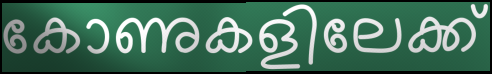
കോണുകളിലേക്ക്